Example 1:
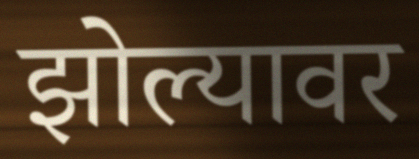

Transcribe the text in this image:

झोल्यावर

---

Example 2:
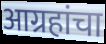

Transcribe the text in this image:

आग्रहांचा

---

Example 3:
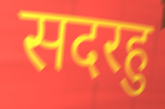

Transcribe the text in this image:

सदरहु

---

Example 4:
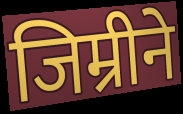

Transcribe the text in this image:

जिम्रीने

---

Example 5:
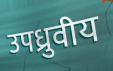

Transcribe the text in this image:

उपध्रुवीय